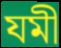
যমী